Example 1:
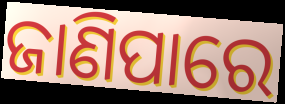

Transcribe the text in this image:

ଜାଣିପାରେ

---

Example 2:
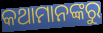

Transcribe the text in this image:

କଥାମାନଙ୍କରୁ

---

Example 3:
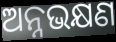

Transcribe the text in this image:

ଅନ୍ନଭକ୍ଷଣ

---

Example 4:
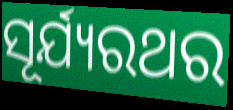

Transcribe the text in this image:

ସୂର୍ଯ୍ୟରଥର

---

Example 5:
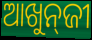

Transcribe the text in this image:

ଆଖୁନ୍‍ଜୀ